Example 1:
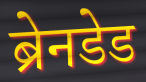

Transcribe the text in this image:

ब्रेनडेड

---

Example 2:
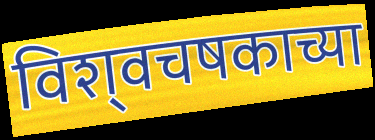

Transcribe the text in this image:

विश्वचषकाच्या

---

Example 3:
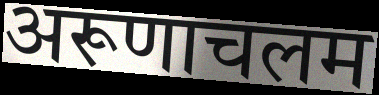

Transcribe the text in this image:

अरूणाचलम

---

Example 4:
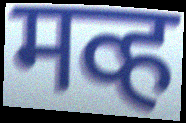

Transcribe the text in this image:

मव्ह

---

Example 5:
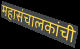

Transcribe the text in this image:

महासंचालकांची